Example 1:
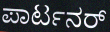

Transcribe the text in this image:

ಪಾರ್ಟನರ್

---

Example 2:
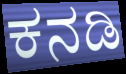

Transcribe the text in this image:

ಕನಡಿ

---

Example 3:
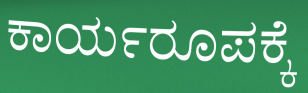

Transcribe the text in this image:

ಕಾರ್ಯರೂಪಕ್ಕೆ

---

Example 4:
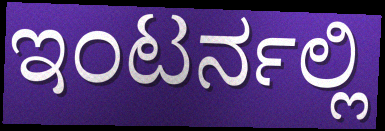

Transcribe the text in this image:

ಇಂಟರ್ನಲ್ಲಿ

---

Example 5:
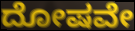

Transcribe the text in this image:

ದೋಷವೇ